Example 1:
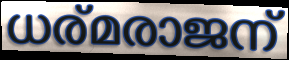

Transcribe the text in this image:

ധര്മരാജന്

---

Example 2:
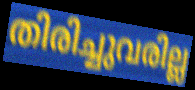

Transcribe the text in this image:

തിരിച്ചുവരില്ല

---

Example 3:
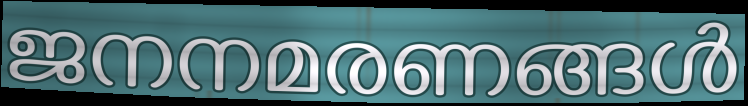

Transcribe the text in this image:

ജനനമരണങ്ങൾ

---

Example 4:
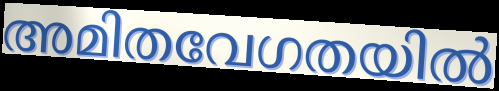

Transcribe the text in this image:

അമിതവേഗതയിൽ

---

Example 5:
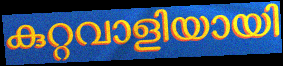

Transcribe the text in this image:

കുറ്റവാളിയായി